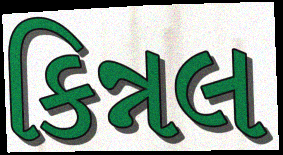
કિન્નલ